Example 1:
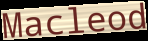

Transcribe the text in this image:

Macleod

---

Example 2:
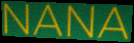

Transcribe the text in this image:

NANA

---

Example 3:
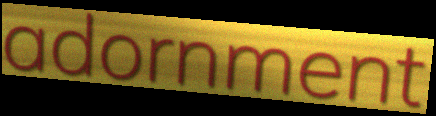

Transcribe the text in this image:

adornment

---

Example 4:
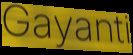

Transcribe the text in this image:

Gayanti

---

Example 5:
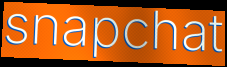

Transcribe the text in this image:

snapchat